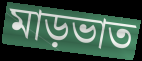
মাড়ভাত